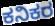
ಕನಿಕರ